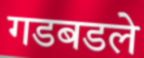
गडबडले